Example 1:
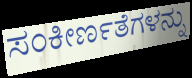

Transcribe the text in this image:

ಸಂಕೀರ್ಣತೆಗಳನ್ನು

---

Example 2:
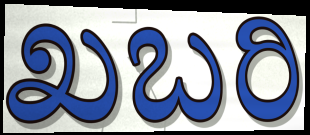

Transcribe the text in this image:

ಖಬರಿ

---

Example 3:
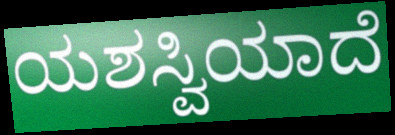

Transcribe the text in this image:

ಯಶಸ್ವಿಯಾದೆ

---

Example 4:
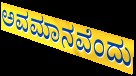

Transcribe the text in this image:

ಅವಮಾನವೆಂದು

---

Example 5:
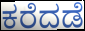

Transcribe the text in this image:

ಕರೆದಡೆ